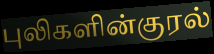
புலிகளின்குரல்